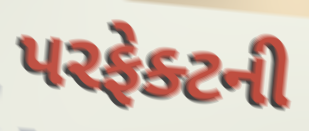
પરફેક્ટની